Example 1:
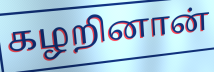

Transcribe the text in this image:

கழறினான்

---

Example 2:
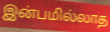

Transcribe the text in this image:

இன்பமில்லாத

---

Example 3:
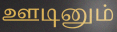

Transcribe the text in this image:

ஊடினும்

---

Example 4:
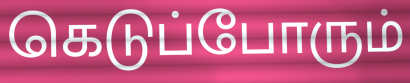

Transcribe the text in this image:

கெடுப்போரும்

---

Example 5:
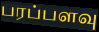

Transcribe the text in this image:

பரப்பளவு